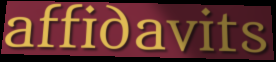
affidavits